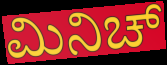
ಮಿನಿಚ್